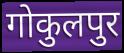
गोकुलपुर